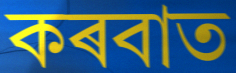
কৰবাত